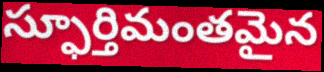
స్ఫూర్తిమంతమైన